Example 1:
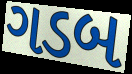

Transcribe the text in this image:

ગડબ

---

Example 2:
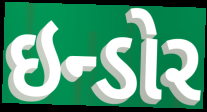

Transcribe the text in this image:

ઇન્ડોર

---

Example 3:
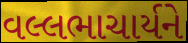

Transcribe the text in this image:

વલ્લભાચાર્યને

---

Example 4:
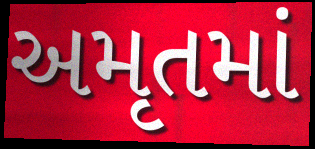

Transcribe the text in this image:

અમૃતમાં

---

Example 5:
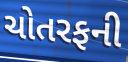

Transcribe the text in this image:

ચોતરફની